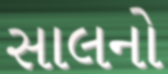
સાલનો